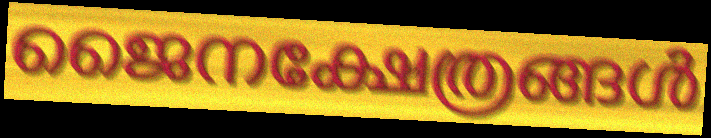
ജൈനക്ഷേത്രങ്ങൾ